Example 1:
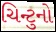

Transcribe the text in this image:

ચિન્ટુનો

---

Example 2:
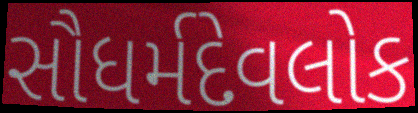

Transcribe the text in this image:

સૌધર્મદેવલોક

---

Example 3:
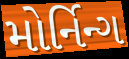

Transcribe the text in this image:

મોર્નિન્ગ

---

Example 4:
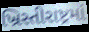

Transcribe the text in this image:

ખ્રિસ્તીરાષ્ટ્રમાં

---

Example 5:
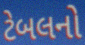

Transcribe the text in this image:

ટેબલનો